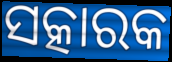
ସତ୍କାରକ